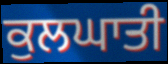
ਕੁਲਘਾਤੀ